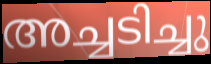
അച്ചടിച്ചു